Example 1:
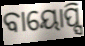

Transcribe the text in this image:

ବାୟୋପ୍ସି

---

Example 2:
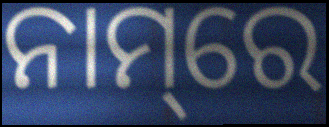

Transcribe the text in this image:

ନାମ୍‌ରେ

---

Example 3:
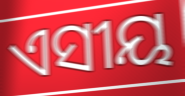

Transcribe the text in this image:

ଏସୀୟ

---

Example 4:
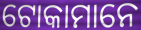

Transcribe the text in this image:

ଟୋକାମାନେ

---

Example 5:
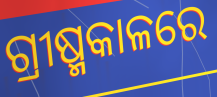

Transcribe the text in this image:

ଗ୍ରୀଷ୍ମକାଳରେ